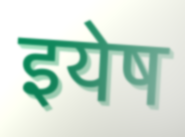
इयेष